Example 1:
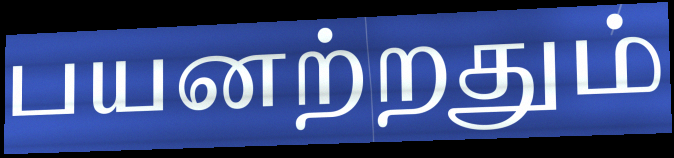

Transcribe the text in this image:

பயனற்றதும்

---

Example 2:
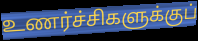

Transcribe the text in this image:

உணர்ச்சிகளுக்குப்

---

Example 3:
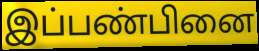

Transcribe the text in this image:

இப்பண்பினை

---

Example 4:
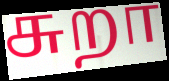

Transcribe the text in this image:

சுறா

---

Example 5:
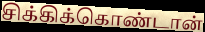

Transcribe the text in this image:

சிக்கிக்கொண்டான்